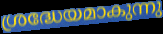
ശ്രദ്ധേയമാകുന്നു